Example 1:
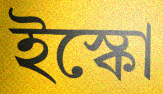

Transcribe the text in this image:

ইস্কো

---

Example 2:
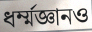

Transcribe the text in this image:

ধর্ম্মজ্ঞানও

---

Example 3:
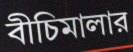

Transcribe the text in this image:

বীচিমালার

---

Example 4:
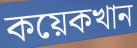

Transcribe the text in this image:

কয়েকখান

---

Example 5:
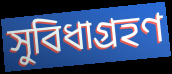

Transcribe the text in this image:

সুবিধাগ্রহণ